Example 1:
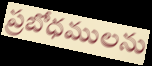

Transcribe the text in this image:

ప్రబోధములను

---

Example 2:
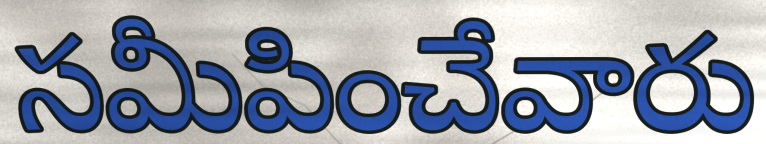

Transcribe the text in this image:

సమీపించేవారు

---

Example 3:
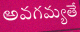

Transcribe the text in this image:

అవగమ్యతే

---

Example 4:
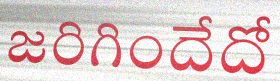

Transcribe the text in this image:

జరిగిందేదో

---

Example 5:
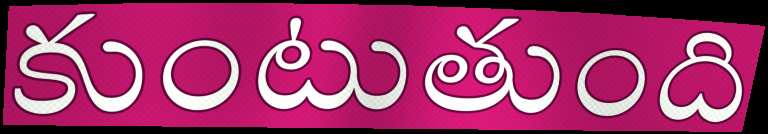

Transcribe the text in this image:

కుంటుతుంది